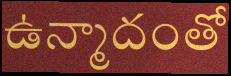
ఉన్మాదంతో